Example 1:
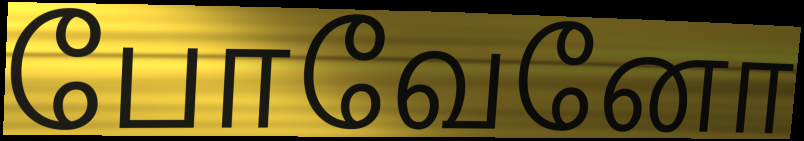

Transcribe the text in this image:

போவேனோ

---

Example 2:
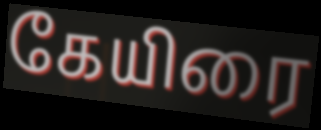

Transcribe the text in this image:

கேயிரை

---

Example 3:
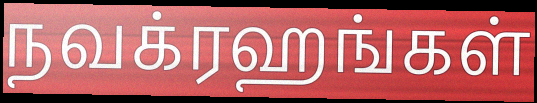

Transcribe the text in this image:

நவக்ரஹங்கள்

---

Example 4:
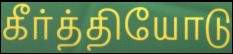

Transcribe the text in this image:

கீர்த்தியோடு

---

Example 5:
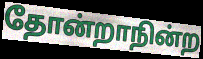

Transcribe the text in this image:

தோன்றாநின்ற